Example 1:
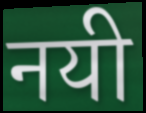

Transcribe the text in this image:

नयी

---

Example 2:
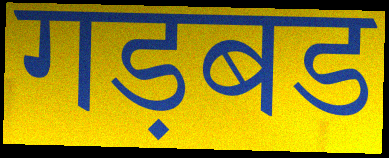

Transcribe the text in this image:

गड़बड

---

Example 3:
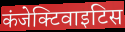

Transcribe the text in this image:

कंजेक्टिवाइटिस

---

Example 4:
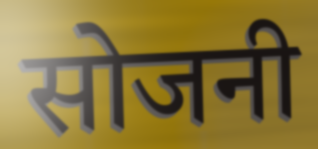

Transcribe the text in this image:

सोजनी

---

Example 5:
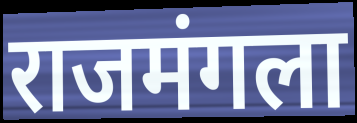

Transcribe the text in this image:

राजमंगला